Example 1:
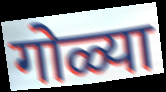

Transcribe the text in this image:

गोळ्या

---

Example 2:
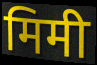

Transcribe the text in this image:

मिमी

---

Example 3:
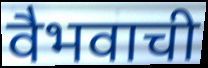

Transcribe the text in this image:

वैभवाची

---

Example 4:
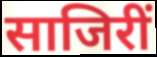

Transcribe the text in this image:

साजिरीं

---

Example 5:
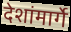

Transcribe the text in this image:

देशांमार्गे